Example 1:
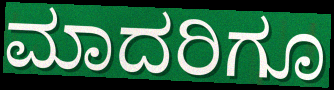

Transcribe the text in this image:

ಮಾದರಿಗೂ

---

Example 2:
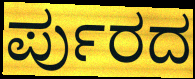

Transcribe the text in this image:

ರ್ಪುರದ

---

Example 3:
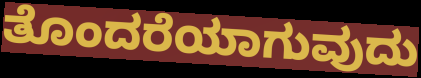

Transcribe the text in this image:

ತೊಂದರೆಯಾಗುವುದು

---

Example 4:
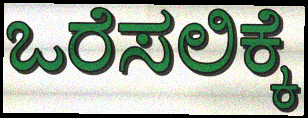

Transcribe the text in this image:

ಒರೆಸಲಿಕ್ಕೆ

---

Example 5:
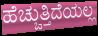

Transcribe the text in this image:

ಹೆಚ್ಚುತ್ತಿದೆಯಲ್ಲ